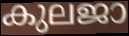
കുലജാ